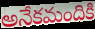
అనేకమందికి